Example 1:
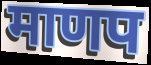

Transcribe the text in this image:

माणप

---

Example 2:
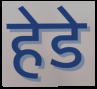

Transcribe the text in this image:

हेडे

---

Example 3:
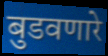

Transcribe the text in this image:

बुडवणारे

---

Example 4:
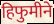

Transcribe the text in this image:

हिफुमीने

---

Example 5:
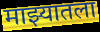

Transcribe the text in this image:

माझ्यातला